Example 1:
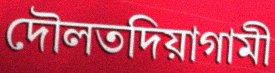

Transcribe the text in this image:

দৌলতদিয়াগামী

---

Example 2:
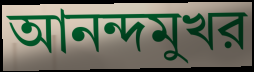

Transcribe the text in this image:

আনন্দমুখর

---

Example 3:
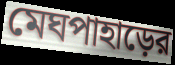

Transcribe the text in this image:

মেঘপাহাড়ের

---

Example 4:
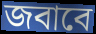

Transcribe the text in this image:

জবাবে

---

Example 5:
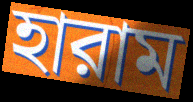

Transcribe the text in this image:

হারাম